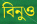
বিনুও